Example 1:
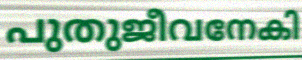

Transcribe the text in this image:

പുതുജീവനേകി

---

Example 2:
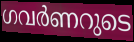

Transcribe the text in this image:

ഗവർണറുടെ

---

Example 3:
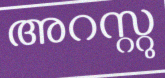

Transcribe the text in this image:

അറസ്റ്റു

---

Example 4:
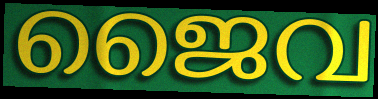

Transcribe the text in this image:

ജൈവ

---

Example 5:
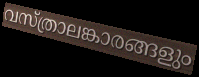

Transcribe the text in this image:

വസ്ത്രാലങ്കാരങ്ങളും